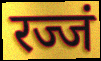
रज्जं